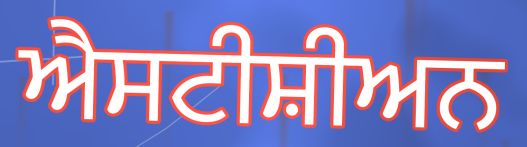
ਐਸਟੀਸ਼ੀਅਨ